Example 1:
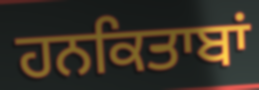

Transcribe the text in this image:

ਹਨਕਿਤਾਬਾਂ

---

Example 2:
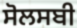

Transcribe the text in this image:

ਸੋਲਸਬੀ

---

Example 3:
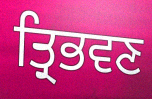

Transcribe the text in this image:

ਤ੍ਰਿਭਵਣ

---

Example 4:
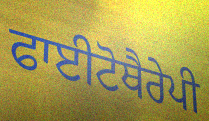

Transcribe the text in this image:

ਫਾਈਟੋਥੈਰੇਪੀ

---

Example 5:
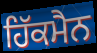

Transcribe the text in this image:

ਹਿੱਕਮੈਨ